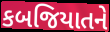
કબજિયાતને